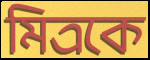
মিত্রকে